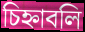
চিহ্নাবলি